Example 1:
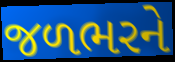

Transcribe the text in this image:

જળભરને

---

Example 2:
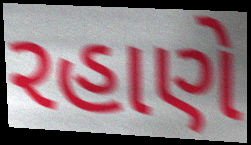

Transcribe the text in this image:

રહાણે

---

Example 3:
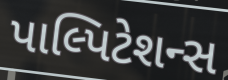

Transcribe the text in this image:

પાલ્પિટેશન્સ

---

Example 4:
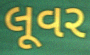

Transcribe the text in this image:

લૂવર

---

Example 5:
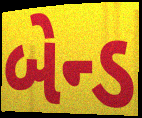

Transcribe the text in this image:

બેન્ડ